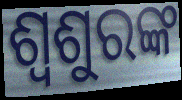
ଶ୍ୱଶୁରଙ୍କ